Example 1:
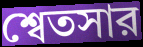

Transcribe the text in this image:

শ্বেতসার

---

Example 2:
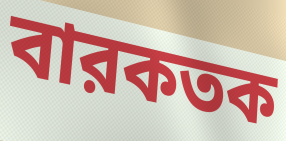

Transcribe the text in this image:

বারকতক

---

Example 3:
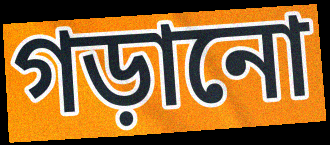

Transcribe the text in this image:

গড়ানো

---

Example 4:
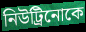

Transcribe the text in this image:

নিউট্রিনোকে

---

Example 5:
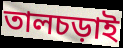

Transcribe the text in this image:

তালচড়াই